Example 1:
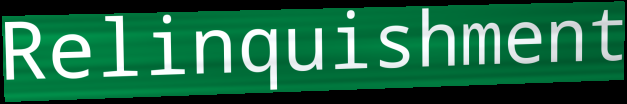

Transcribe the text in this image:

Relinquishment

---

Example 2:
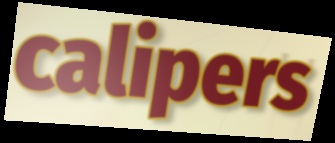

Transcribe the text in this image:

calipers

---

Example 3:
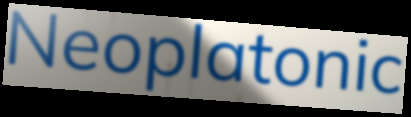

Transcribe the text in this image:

Neoplatonic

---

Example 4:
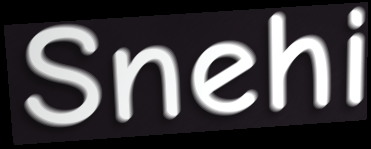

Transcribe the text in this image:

Snehi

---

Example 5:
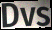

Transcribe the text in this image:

Dvs